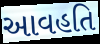
આવહતિ